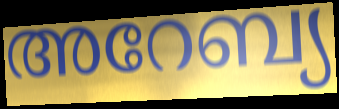
അറേബ്യ